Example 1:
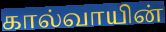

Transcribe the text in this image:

கால்வாயின்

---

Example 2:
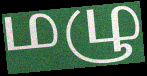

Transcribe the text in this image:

மழு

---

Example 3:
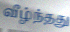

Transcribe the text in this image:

வீழ்ந்தது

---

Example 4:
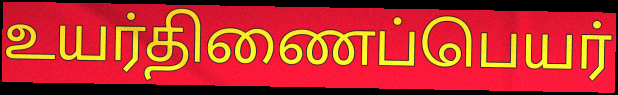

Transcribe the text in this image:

உயர்திணைப்பெயர்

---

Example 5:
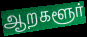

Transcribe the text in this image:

ஆறகளூர்